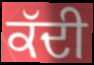
ਕੱਦੀ